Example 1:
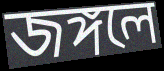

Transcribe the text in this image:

জঙ্গলে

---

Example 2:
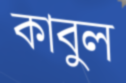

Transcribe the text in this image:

কাবুল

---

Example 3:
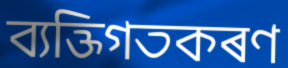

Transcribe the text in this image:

ব্যক্তিগতকৰণ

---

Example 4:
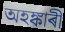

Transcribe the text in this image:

অহঙ্কাৰী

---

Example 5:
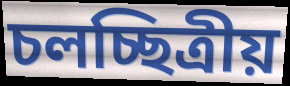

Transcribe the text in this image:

চলচ্ছিত্ৰীয়